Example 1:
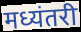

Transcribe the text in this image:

मध्यंतरी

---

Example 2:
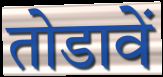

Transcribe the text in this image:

तोडावें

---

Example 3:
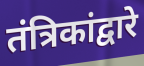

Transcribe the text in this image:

तंत्रिकांद्वारे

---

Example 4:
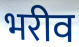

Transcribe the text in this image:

भरीव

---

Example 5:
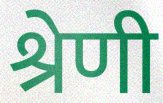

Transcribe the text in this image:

श्रेणी